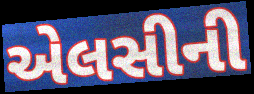
એલસીની